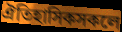
ঐতিহাসিকসকলে